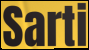
Sarti